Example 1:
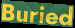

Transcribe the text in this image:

Buried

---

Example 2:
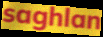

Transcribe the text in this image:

saghlan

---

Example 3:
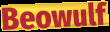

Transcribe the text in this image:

Beowulf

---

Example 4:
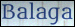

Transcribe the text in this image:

Balaga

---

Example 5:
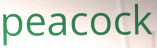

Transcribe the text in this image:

peacock